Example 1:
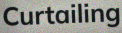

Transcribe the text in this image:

Curtailing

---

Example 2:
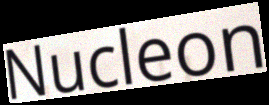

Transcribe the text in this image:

Nucleon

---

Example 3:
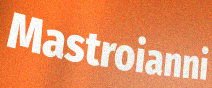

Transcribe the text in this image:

Mastroianni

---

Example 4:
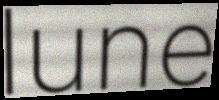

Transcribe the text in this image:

lune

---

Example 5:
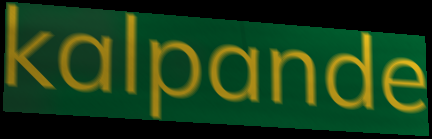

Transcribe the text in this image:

kalpande